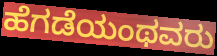
ಹೆಗಡೆಯಂಥವರು